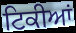
ਟਿਕੀਆਂ